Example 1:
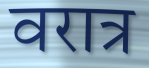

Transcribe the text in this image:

वरात्र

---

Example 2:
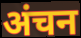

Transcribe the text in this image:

अंचन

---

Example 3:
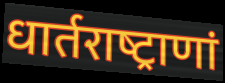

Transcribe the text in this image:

धार्तराष्ट्राणां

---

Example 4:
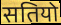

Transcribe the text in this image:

सतियो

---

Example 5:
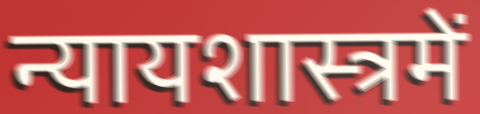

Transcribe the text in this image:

न्यायशास्त्रमें